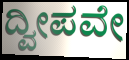
ದ್ವೀಪವೇ